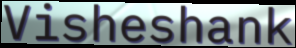
Visheshank